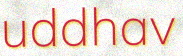
uddhav